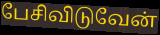
பேசிவிடுவேன்